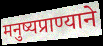
मनुष्यप्राण्याने